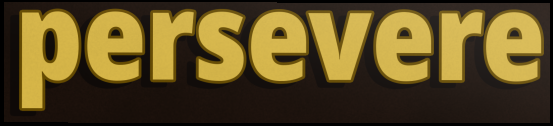
persevere